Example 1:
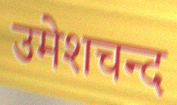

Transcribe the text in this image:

उमेशचन्द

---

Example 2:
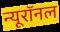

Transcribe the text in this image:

न्यूरॉनल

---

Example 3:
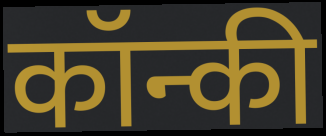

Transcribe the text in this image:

कॉन्की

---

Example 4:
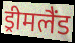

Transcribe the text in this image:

ड्रीमलैंड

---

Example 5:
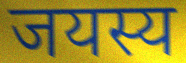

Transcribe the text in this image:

जयस्य